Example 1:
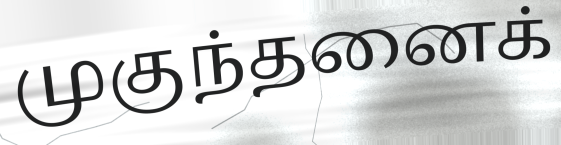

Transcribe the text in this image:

முகுந்தனைக்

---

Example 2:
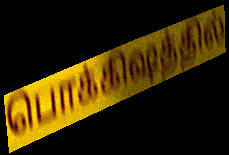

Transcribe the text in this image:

பொக்கிஷத்தில்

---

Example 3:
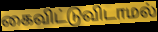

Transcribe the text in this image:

கைவிட்டுவிடாமல்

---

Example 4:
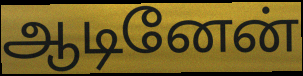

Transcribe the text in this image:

ஆடினேன்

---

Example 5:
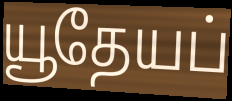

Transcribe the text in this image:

யூதேயப்